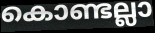
കൊണ്ടല്ലാ